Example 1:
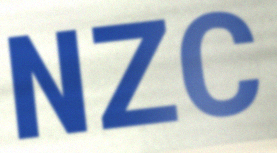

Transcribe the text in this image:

NZC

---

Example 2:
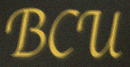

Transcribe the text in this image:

BCU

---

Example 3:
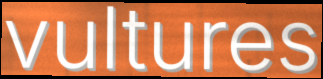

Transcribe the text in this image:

vultures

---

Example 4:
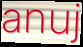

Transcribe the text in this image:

anuj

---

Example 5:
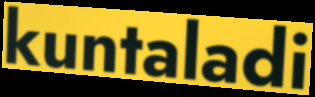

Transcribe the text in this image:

kuntaladi